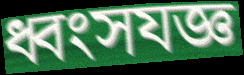
ধ্বংসযজ্ঞ